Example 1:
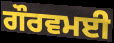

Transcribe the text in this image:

ਗੌਰਵਮਈ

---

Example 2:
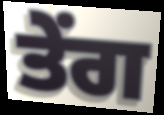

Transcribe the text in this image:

ਤੇਂਗ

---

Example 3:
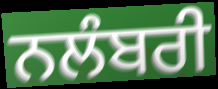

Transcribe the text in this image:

ਨਲੰਬਰੀ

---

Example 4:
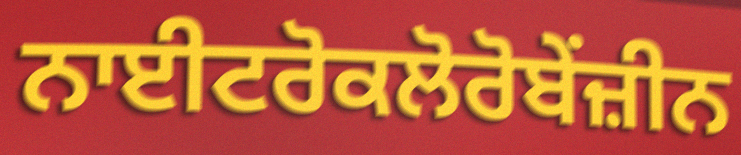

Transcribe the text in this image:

ਨਾਈਟਰੋਕਲੋਰੋਬੇਂਜ਼ੀਨ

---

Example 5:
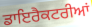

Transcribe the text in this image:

ਡਾਇਰੈਕਟਰੀਆਂ